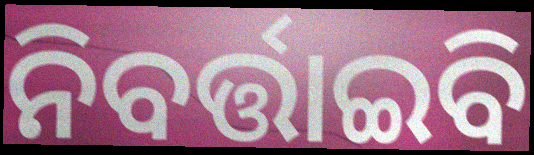
ନିବର୍ତ୍ତାଇବି